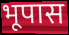
भूपास